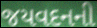
જયવદનની